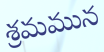
శ్రమమున